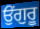
ਉਂਗੁਰੂ